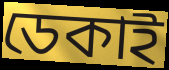
ডেকাই